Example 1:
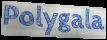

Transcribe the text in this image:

Polygala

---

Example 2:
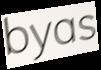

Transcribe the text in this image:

byas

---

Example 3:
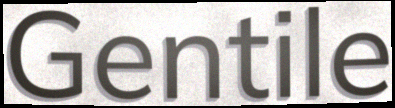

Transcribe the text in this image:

Gentile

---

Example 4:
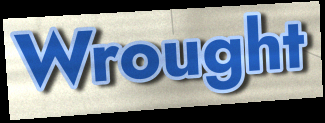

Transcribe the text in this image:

Wrought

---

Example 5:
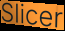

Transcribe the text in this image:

Slicer